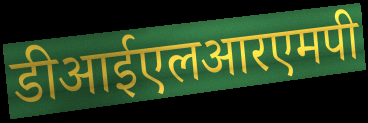
डीआईएलआरएमपी